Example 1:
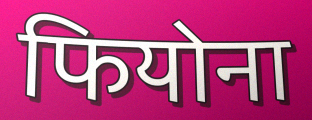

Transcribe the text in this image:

फियोना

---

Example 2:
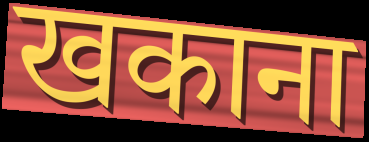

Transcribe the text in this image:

खकाना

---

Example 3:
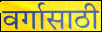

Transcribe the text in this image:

वर्गासाठी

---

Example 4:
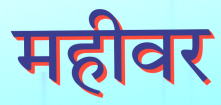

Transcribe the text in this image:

महीवर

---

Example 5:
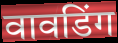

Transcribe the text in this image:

वावडिंग